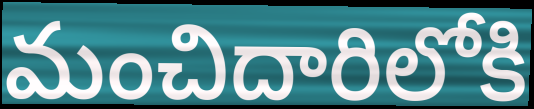
మంచిదారిలోకి